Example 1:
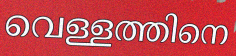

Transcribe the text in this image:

വെള്ളത്തിനെ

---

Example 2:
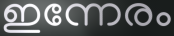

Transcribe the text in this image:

ഇന്നേരം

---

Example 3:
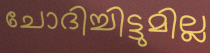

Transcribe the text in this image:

ചോദിച്ചിട്ടുമില്ല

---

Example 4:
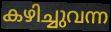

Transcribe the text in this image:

കഴിച്ചുവന്ന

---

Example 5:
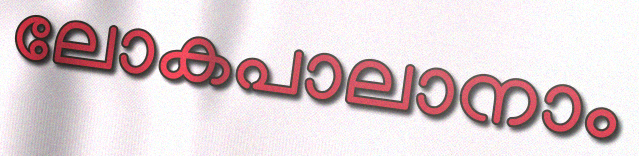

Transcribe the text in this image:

ലോകപാലാനാം